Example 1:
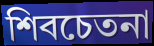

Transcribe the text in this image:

শিবচেতনা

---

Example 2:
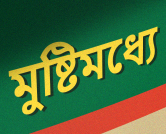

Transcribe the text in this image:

মুষ্টিমধ্যে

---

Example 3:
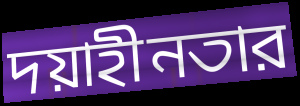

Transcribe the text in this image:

দয়াহীনতার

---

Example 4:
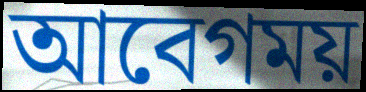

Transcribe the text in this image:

আবেগময়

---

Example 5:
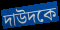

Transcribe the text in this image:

দাউদকে